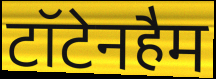
टॉटेनहैम